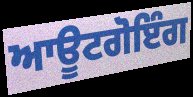
ਆਊਟਗੋਇੰਗ